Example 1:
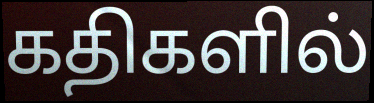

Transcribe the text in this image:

கதிகளில்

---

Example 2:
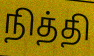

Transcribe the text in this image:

நித்தி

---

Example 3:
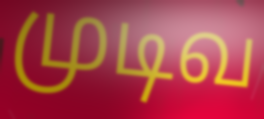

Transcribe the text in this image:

முடிவ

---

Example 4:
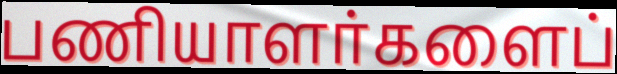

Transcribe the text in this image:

பணியாளர்களைப்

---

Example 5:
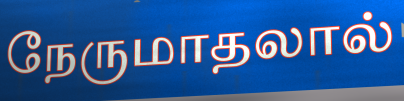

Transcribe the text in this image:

நேருமாதலால்